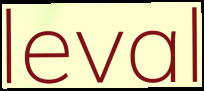
leval